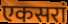
एकसरां